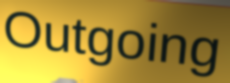
Outgoing